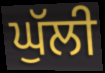
ਘੁੱਲੀ